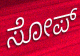
ಸೋಪ್